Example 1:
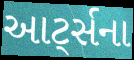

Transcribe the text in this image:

આર્ટ્સના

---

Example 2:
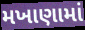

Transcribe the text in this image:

મખાણામાં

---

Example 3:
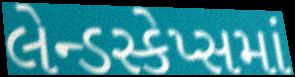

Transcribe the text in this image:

લેન્ડસ્કેપ્સમાં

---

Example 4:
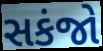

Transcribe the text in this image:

સકંજો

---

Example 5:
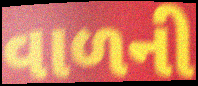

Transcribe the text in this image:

વાળની